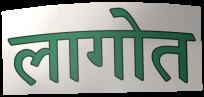
लागोत